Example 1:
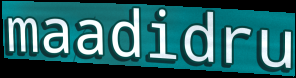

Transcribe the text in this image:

maadidru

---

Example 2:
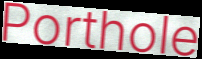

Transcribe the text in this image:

Porthole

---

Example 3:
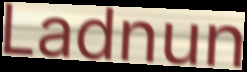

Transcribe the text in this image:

Ladnun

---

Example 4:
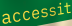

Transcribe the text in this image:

accessit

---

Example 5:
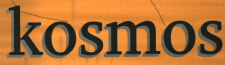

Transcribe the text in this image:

kosmos